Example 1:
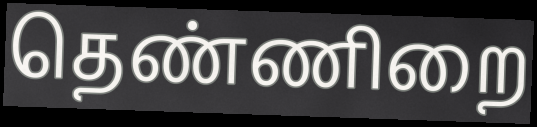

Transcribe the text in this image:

தெண்ணிறை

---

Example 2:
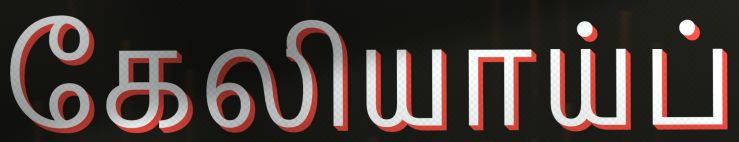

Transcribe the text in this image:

கேலியாய்ப்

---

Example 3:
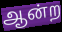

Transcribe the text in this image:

ஆன்ற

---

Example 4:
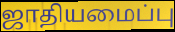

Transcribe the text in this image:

ஜாதியமைப்பு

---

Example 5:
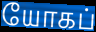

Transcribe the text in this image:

யோகப்